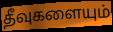
தீவுகளையும்